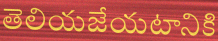
తెలియజేయటానికి